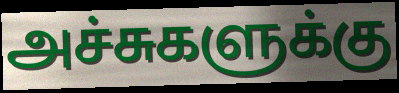
அச்சுகளுக்கு